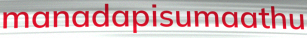
manadapisumaathu